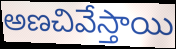
అణచివేస్తాయి